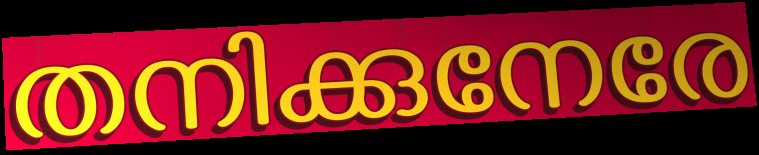
തനിക്കുനേരേ